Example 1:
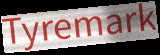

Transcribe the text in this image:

Tyremark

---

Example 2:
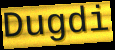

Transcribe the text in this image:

Dugdi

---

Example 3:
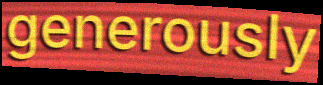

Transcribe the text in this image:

generously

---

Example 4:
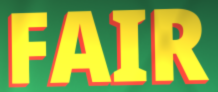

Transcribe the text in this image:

FAIR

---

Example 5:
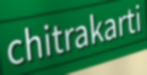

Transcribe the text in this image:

chitrakarti